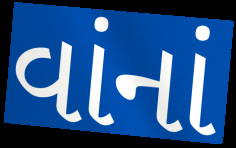
વાંનાં